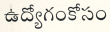
ఉద్యోగంకోసం